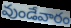
వుండేవారం